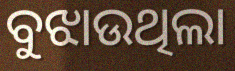
ବୁଝାଉଥିଲା